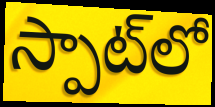
స్పాట్‌లో